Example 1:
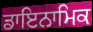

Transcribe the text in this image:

ਡਾਇਨਾਮਿਕ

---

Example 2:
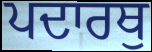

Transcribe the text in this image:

ਪਦਾਰਥੁ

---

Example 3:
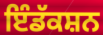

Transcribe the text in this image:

ਇੰਡੱਕਸ਼ਨ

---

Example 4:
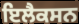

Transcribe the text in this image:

ਇਲੈਕਸਨ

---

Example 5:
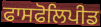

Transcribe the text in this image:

ਫਾਸਫੋਲਿਪੀਡ